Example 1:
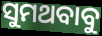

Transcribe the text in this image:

ସୁମଥବାବୁ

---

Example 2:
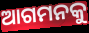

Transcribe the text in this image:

ଆଗମନକୁ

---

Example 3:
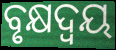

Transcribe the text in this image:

ବୃକ୍ଷଦ୍ୱୟ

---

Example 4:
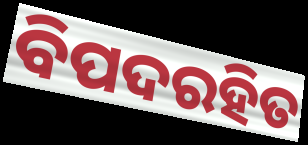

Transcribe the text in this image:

ବିପଦରହିତ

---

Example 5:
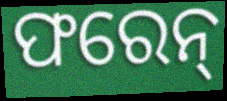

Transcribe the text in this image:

ଫରେନ୍